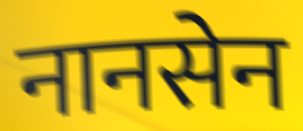
नानसेन